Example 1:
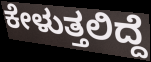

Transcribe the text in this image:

ಕೇಳುತ್ತಲಿದ್ದೆ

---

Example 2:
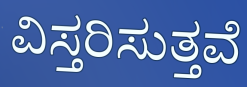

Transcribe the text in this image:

ವಿಸ್ತರಿಸುತ್ತವೆ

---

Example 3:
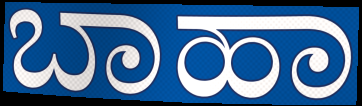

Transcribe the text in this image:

ಬಾಹಾ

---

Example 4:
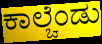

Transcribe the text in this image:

ಕಾಲ್ಚೆಂಡು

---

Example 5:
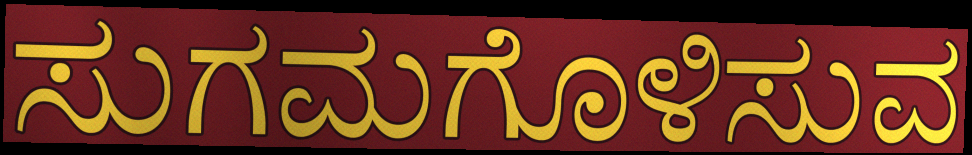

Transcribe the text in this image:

ಸುಗಮಗೊಳಿಸುವ